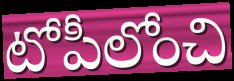
టోపీలోంచి